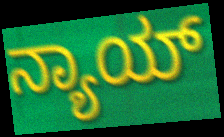
ನ್ಯಾಯ್